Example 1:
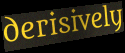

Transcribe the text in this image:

derisively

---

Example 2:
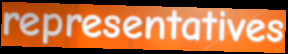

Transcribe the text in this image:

representatives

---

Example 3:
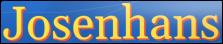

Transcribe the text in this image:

Josenhans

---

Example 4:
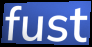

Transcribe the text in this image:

fust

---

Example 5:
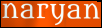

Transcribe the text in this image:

naryan